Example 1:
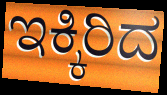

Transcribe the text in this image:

ಇಕ್ಕಿರಿದ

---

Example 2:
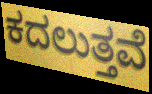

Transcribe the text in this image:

ಕದಲುತ್ತವೆ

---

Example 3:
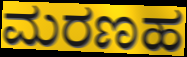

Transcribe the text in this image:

ಮರಣಹ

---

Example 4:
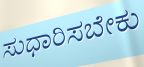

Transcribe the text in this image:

ಸುಧಾರಿಸಬೇಕು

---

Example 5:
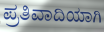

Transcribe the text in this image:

ಪ್ರತಿವಾದಿಯಾಗಿ